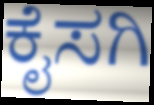
ಕೈಸಗಿ